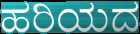
ಹರಿಯದ